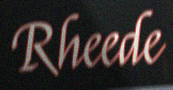
Rheede